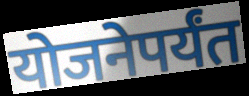
योजनेपर्यंत